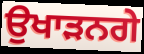
ਉਖਾੜਨਗੇ